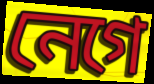
নেগে